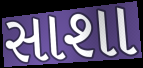
સાશા